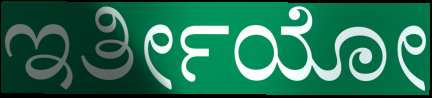
ಇರ್ತೀಯೋ